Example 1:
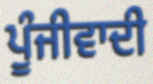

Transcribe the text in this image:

ਪੂੰਜੀਵਾਦੀ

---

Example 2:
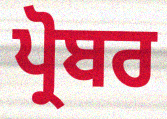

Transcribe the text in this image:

ਪ੍ਰੋਬਰ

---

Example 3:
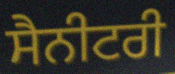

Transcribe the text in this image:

ਸੈਨੀਟਰੀ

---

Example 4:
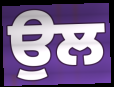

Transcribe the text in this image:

ਉਲ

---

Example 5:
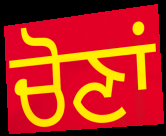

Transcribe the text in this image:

ਚੋਣਾਂ